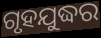
ଗୃହଯୁଦ୍ଧର